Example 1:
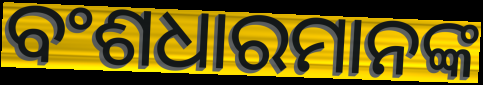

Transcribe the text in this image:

ବଂଶଧାରମାନଙ୍କ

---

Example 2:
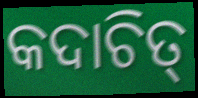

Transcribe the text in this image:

କଦାଚିତ୍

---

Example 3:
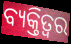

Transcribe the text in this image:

ବ୍ୟକ୍ତିତ୍ବର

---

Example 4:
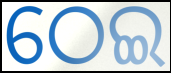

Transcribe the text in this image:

ଠେଇ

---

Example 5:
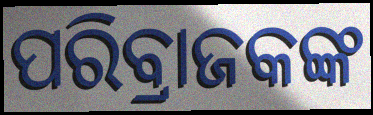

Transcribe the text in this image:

ପରିବ୍ରାଜକଙ୍କ